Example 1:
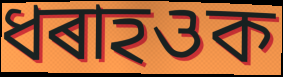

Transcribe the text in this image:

ধৰাহওক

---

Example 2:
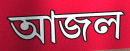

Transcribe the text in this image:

আজল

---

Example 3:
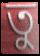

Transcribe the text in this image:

তু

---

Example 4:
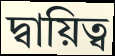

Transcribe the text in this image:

দ্বায়িত্ব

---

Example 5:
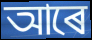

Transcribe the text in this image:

আৰে